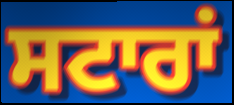
ਸਟਾਰਾਂ